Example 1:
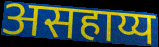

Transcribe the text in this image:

असहाय्य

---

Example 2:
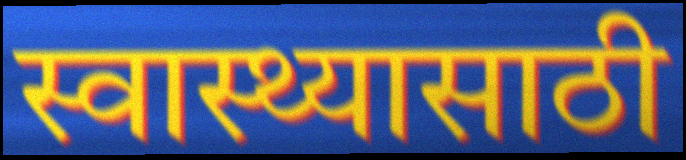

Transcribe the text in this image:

स्वास्थ्यासाठी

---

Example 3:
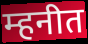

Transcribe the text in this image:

म्हनीत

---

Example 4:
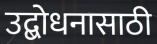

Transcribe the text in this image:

उद्बोधनासाठी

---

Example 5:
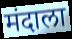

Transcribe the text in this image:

मंदाला